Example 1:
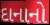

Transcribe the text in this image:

દાનાનો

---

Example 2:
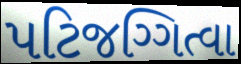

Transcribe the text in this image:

પટિજગ્ગિત્વા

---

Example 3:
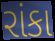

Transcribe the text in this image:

રાંકા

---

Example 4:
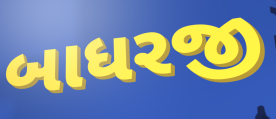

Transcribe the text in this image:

બાધરજી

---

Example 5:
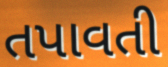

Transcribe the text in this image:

તપાવતી